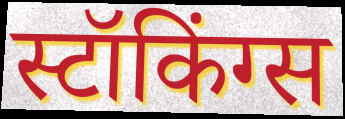
स्टॉकिंग्स